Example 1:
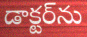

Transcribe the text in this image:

డాక్టర్‌ను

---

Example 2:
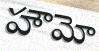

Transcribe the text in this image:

హౌమో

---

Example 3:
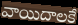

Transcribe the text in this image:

వాయిదాలకే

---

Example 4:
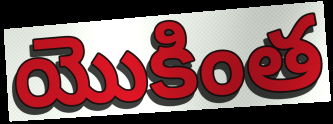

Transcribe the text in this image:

యొకింత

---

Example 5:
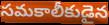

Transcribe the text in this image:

సమకాలీకుడైన